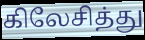
கிலேசித்து